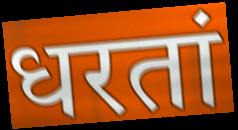
धरतां